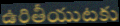
ఉరితీయుటకు